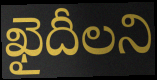
ఖైదీలని